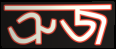
ত্রুজ